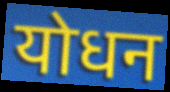
योधन